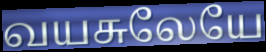
வயசுலேயே